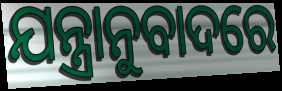
ଯନ୍ତ୍ରାନୁବାଦରେ